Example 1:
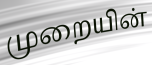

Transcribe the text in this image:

முறையின்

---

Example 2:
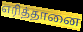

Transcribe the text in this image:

எரித்தானை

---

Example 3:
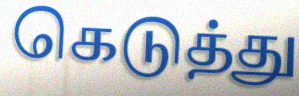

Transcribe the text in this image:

கெடுத்து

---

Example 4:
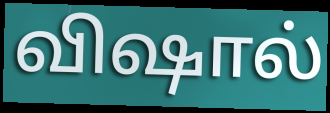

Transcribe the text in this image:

விஷால்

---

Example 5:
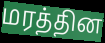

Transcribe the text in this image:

மரத்தின